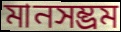
মানসম্ভ্রম